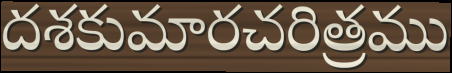
దశకుమారచరిత్రము